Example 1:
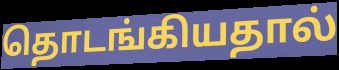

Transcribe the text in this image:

தொடங்கியதால்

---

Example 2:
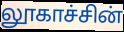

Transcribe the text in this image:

லூகாச்சின்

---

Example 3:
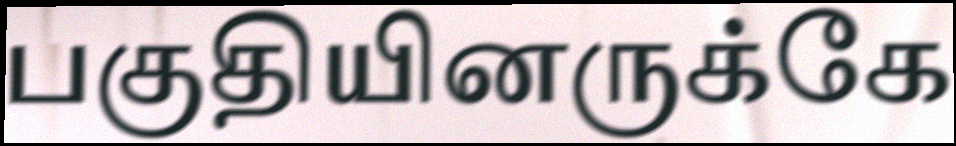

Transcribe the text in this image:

பகுதியினருக்கே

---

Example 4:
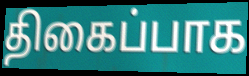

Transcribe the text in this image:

திகைப்பாக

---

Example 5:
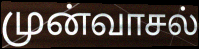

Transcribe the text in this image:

முன்வாசல்